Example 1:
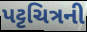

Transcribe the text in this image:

પટ્ટચિત્રની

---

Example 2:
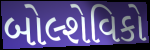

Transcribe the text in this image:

બોલ્શેવિકો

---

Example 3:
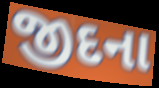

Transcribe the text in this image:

જીદના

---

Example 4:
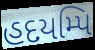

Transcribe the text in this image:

હદયમ્પિ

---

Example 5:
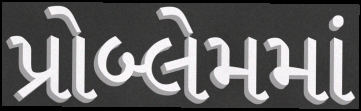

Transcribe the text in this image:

પ્રોબ્લેમમાં